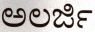
ಅಲರ್ಜಿ